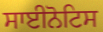
ਸਾਈਨੋਟਿਸ